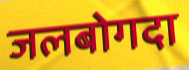
जलबोगदा